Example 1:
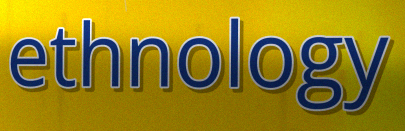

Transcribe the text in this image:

ethnology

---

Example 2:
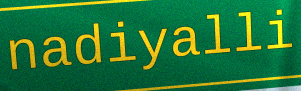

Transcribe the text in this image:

nadiyalli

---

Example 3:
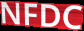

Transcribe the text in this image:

NFDC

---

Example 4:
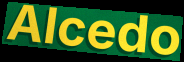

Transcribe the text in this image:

Alcedo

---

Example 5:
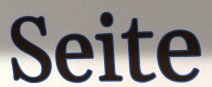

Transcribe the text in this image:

Seite